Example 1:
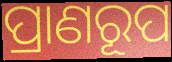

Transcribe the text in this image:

ପ୍ରାଣରୂପ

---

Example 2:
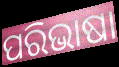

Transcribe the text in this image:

ପରିଭାଷା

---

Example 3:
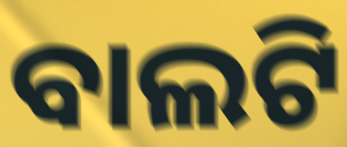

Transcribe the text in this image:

ବାଲଟି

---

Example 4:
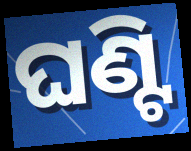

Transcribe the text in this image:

ଘଣ୍ଟି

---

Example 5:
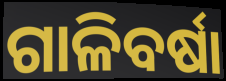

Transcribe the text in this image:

ଗାଳିବର୍ଷା